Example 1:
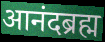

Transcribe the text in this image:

आनंदब्रह्म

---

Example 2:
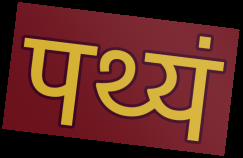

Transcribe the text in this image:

पथ्यं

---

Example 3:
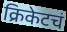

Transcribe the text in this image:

क्रिकेटचं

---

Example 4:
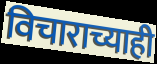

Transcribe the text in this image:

विचाराच्याही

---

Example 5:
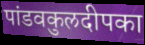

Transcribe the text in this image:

पांडवकुलदीपका